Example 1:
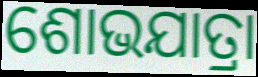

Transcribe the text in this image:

ଶୋଭଯାତ୍ରା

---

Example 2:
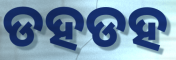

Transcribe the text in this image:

ଡହଡହ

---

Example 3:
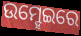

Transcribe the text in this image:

ଉମ୍ହେଇରେ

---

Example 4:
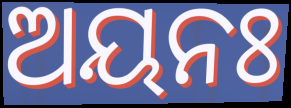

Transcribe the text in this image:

ଅୟନଃ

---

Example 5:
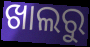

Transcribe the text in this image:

ଖାଲରୁ